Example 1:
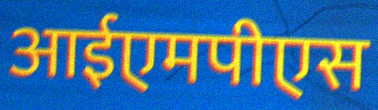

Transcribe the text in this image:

आईएमपीएस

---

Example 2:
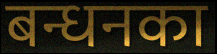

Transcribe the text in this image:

बन्धनका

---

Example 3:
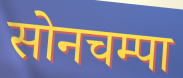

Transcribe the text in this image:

सोनचम्पा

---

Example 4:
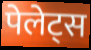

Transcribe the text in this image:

पेलेट्स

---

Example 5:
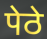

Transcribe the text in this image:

पेठे